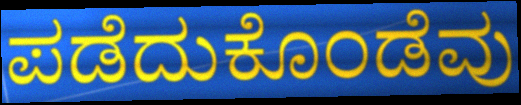
ಪಡೆದುಕೊಂಡೆವು